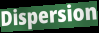
Dispersion